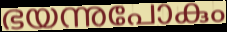
ഭയന്നുപോകും